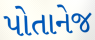
પોતાનેજ